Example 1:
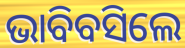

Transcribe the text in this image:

ଭାବିବସିଲେ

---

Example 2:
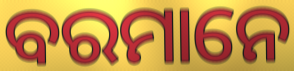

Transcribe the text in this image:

ବରମାନେ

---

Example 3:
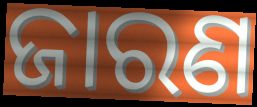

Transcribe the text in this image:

ଜାରଣ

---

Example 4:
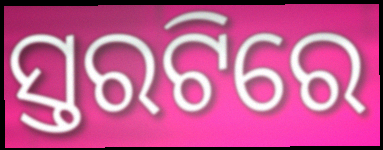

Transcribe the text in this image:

ସ୍ତରଟିରେ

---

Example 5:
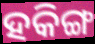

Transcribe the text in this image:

ହକିଙ୍ଗ